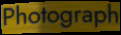
Photograph